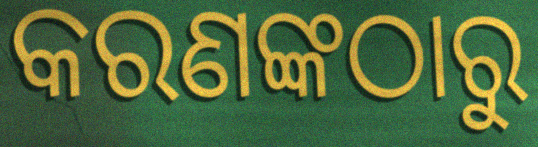
କରଣଙ୍କଠାରୁ